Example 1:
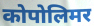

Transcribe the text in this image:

कोपोलिमर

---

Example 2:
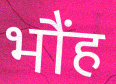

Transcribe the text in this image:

भौंह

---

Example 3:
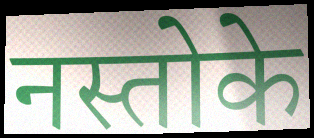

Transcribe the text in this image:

नस्तोके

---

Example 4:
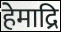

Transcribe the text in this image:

हेमाद्रि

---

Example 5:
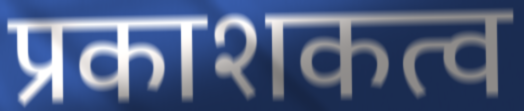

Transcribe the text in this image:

प्रकाशकत्व